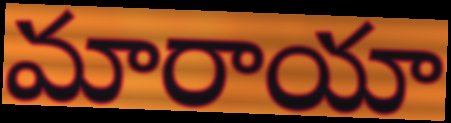
మారాయా